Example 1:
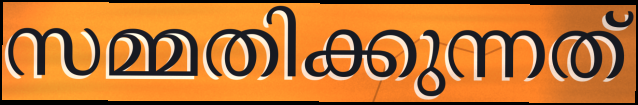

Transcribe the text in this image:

സമ്മതിക്കുന്നത്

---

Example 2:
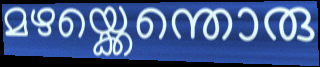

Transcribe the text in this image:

മഴയ്ക്കെന്തൊരു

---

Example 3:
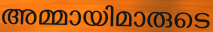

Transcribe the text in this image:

അമ്മായിമാരുടെ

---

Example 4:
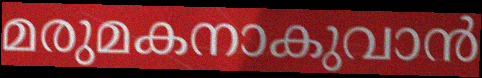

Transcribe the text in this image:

മരുമകനാകുവാൻ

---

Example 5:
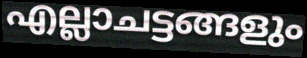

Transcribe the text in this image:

എല്ലാചട്ടങ്ങളും